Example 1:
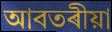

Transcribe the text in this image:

আবতৰীয়া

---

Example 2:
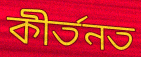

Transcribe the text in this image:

কীৰ্তনত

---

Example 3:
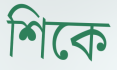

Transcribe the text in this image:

শিকে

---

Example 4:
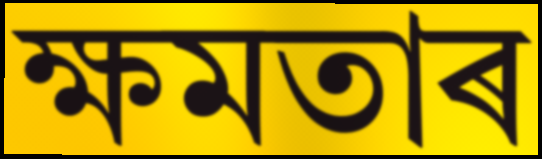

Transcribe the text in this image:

ক্ষমতাৰ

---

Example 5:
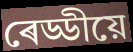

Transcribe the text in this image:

ৰেড্ডীয়ে